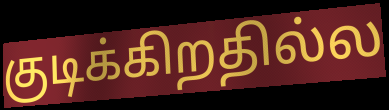
குடிக்கிறதில்ல